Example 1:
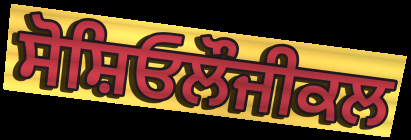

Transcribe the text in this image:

ਸੋਸ਼ਿਓਲੌਜੀਕਲ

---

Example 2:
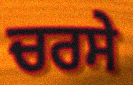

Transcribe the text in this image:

ਚਰਸੇ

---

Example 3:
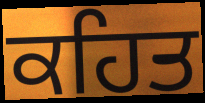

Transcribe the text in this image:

ਕਹਿਤ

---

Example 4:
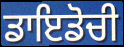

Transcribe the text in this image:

ਡਾਇਡੋਚੀ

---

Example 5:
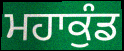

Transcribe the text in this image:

ਮਹਾਕੁੰਡ